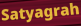
Satyagrah